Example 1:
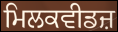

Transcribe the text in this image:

ਮਿਲਕਵੀਡਜ਼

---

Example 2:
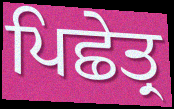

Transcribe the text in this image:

ਪਿਛੇਤ੍ਰ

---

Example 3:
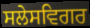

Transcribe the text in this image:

ਸਲੇਸਵਿਗਰ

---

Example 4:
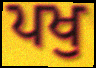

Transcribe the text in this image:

ਪਖੁ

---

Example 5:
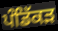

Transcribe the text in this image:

ਪੰਡਿੱਕੜ